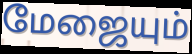
மேஜையும்